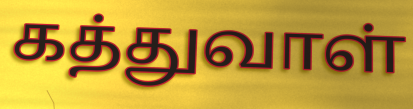
கத்துவாள்